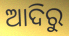
ଆଦିରୁ